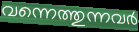
വന്നെത്തുന്നവർ